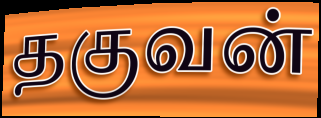
தகுவன்